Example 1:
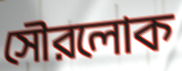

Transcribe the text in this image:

সৌরলোক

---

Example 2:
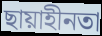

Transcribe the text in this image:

ছায়াহীনতা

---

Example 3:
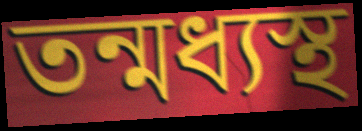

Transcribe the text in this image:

তন্মধ্যস্থ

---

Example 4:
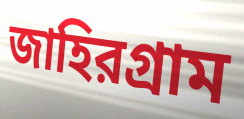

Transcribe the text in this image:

জাহিরগ্রাম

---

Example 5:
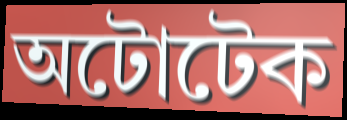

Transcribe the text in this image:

অটোটেক